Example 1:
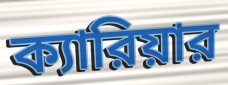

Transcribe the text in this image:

ক্যারিয়ার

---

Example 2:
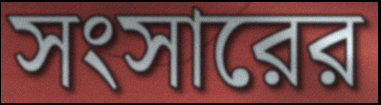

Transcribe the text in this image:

সংসারের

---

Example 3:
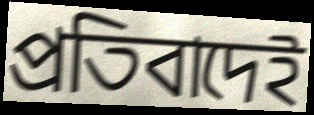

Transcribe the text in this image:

প্রতিবাদেই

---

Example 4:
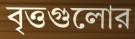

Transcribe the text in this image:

বৃত্তগুলোর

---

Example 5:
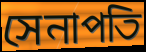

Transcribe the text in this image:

সেনাপতি